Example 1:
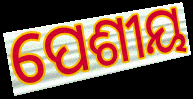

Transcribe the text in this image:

ପେଶୀୟ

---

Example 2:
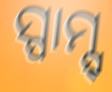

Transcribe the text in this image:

ସ୍ପାମ୍ସ୍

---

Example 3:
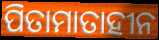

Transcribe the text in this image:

ପିତାମାତାହୀନ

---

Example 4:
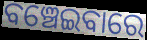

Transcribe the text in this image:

ବଞ୍ଚେଇବାରେ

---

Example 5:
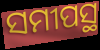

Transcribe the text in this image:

ସମୀପସ୍ଥ